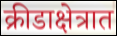
क्रीडाक्षेत्रात